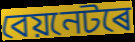
বেয়নেটৰে